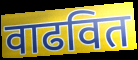
वाढवित